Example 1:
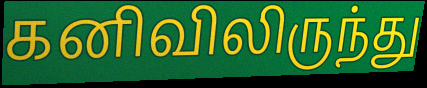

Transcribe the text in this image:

கனிவிலிருந்து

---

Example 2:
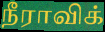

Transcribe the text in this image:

நீராவிக்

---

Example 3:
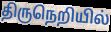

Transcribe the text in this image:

திருநெறியில்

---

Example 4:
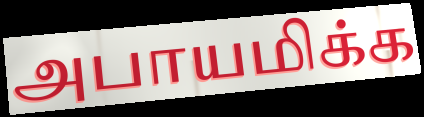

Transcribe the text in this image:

அபாயமிக்க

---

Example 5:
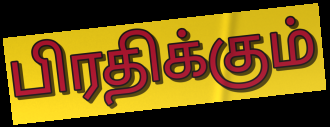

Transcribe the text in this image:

பிரதிக்கும்